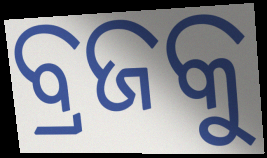
ବ୍ରଜକୁ